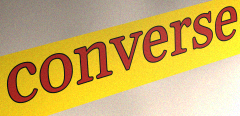
converse